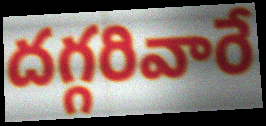
దగ్గరివారే